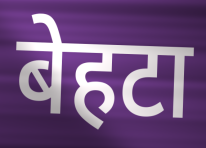
बेहटा